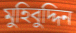
মুহিবুদ্দিন